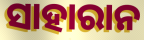
ସାହାରାନ